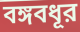
বঙ্গবধূর